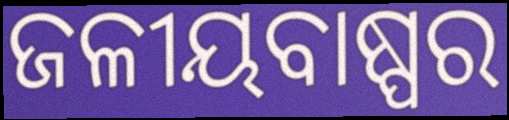
ଜଳୀୟବାଷ୍ପର